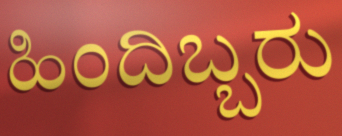
ಹಿಂದಿಬ್ಬರು